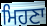
ਮਿਹਣਾ